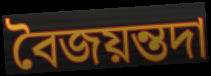
বৈজয়ন্তদা